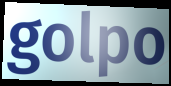
golpo